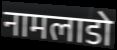
नामलाडो